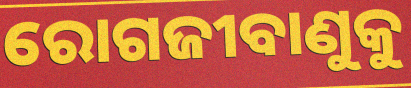
ରୋଗଜୀବାଣୁକୁ